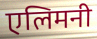
एलिमनी